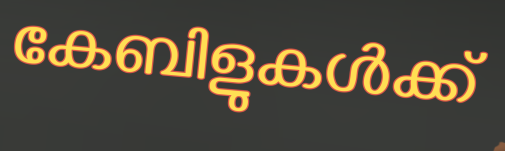
കേബിളുകൾക്ക്